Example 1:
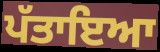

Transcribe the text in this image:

ਪੱਤਾਇਆ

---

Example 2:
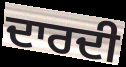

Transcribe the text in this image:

ਦਾਰਦੀ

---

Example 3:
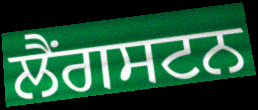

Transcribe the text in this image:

ਲੈਂਗਸਟਨ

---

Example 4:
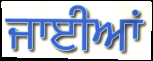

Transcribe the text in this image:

ਜਾਈਆਂ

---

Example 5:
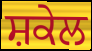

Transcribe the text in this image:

ਸ਼ਕੇਲ